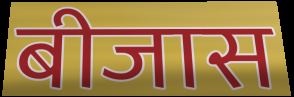
बीजास